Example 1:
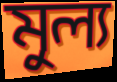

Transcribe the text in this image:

মুল্য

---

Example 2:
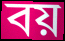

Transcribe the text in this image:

বয়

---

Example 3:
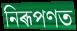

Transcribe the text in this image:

নিৰূপণত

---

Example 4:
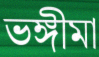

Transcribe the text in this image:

ভঙ্গীমা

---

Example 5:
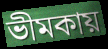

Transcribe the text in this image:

ভীমকায়